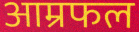
आम्रफल